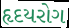
હૃદયરોગ